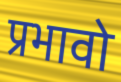
प्रभावो